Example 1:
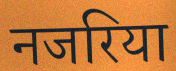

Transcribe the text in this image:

नजरिया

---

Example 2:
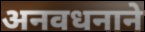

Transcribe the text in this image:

अनवधनाने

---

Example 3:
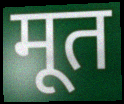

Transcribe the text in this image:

मूत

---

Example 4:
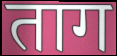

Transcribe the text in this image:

ताग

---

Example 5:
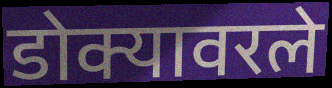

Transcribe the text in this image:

डोक्यावरले